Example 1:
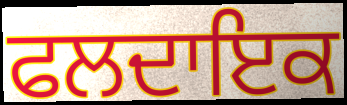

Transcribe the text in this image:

ਫਲਦਾਇਕ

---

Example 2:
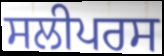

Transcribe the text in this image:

ਸਲੀਪਰਸ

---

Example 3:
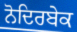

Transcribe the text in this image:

ਨੋਦਿਰਬੇਕ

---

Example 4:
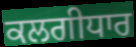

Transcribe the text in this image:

ਕਲਗੀਧਾਰ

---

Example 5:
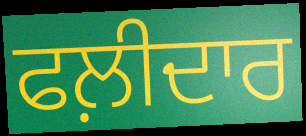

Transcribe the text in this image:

ਫਲ਼ੀਦਾਰ